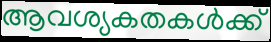
ആവശ്യകതകൾക്ക്